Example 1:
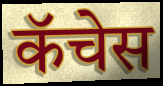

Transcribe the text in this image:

कॅचेस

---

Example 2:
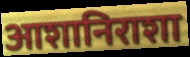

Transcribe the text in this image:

आशानिराशा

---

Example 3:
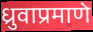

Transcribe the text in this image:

ध्रुवाप्रमाणे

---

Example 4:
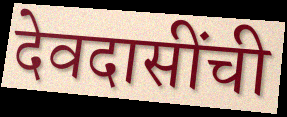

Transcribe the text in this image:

देवदासींची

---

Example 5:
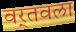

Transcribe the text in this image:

वर्तवला